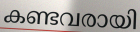
കണ്ടവരായി